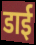
डाई